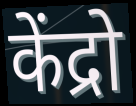
केंद्रो